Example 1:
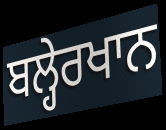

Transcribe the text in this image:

ਬਲ੍ਹੇਰਖਾਨ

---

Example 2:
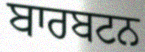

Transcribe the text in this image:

ਬਾਰਬਟਨ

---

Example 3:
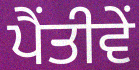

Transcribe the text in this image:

ਪੈਂਤੀਵੇਂ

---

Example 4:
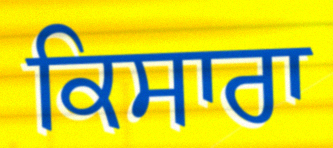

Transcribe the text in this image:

ਕਿਸਾਰਾ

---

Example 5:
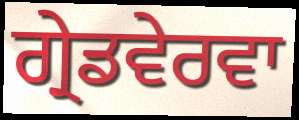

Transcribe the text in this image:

ਗ੍ਰੇਡਵੇਰਵਾ